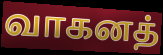
வாகனத்